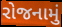
રોજનામું